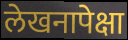
लेखनापेक्षा